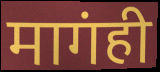
मागंही